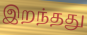
இறந்தது